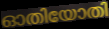
ഓതിയോതി